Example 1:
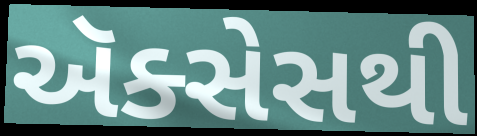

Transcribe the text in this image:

ઍક્સેસથી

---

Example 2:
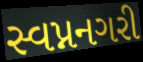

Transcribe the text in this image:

સ્વપ્નનગરી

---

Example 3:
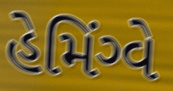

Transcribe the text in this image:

હેમિંગ્વે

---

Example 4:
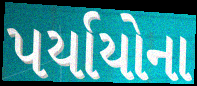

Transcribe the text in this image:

પર્યાયોના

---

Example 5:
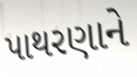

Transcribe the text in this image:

પાથરણાને